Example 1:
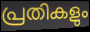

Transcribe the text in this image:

പ്രതികളും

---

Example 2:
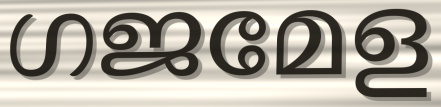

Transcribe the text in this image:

ഗജമേള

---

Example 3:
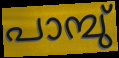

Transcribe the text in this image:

പാമ്പു്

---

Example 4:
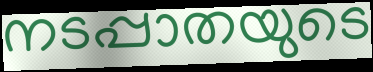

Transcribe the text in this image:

നടപ്പാതയുടെ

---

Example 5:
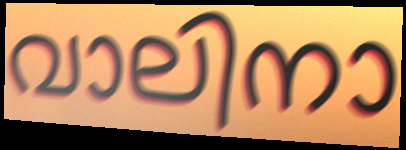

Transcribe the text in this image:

വാലിനാ